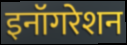
इनॉगरेशन